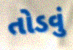
તોડવું